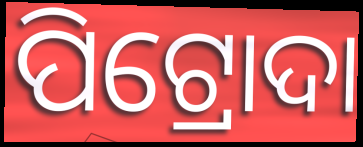
ପିଟ୍ରୋଦା